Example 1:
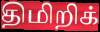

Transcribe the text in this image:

திமிறிக்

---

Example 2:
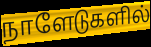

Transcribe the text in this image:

நாளேடுகளில்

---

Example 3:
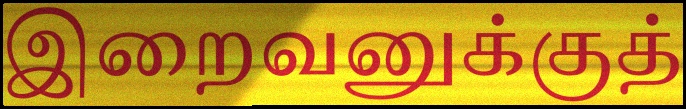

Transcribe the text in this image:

இறைவனுக்குத்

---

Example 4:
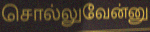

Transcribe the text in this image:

சொல்லுவேன்னு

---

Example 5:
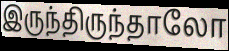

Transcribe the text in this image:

இருந்திருந்தாலோ